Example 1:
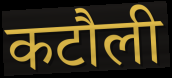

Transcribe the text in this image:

कटौली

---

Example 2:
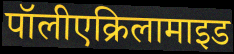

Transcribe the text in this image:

पॉलीएक्रिलामाइड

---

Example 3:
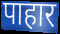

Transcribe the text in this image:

पाहार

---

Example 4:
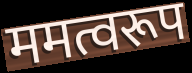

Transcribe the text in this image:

ममत्वरूप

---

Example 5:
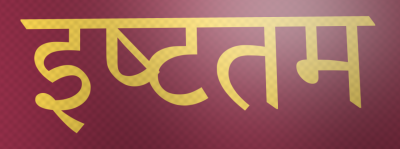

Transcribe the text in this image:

इष्‍टतम